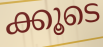
ക്കൂടെ